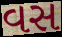
વસ